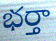
భర్తా